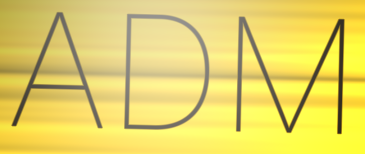
ADM